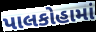
પાલકોહામાં